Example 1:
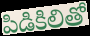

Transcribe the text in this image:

పిడికిలితో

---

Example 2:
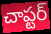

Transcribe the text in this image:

చాప్టర్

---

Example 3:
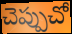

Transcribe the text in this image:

చెప్పుచో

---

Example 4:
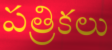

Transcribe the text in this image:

పత్రికలు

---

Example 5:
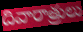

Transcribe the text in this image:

దివారాత్రులు